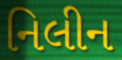
નિલીન